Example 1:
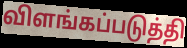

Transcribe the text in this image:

விளங்கப்படுத்தி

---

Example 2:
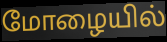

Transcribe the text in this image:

மோழையில்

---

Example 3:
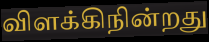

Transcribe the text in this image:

விளக்கிநின்றது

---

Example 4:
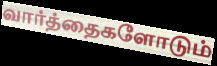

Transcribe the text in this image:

வார்த்தைகளோடும்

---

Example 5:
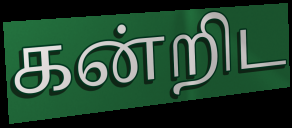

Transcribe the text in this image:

கன்றிட